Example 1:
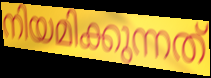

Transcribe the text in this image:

നിയമിക്കുന്നത്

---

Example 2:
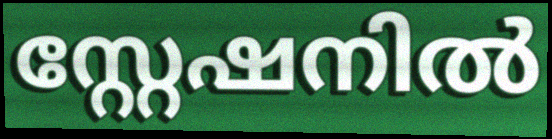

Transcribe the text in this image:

സ്റ്റേഷനിൽ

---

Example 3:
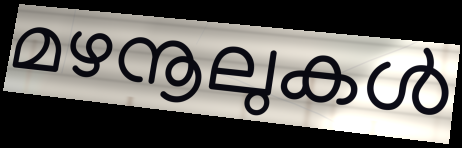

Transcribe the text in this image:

മഴനൂലുകൾ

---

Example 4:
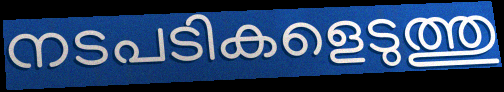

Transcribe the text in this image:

നടപടികളെടുത്തു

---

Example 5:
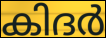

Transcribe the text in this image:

കിദർ